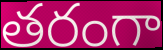
తరంగా